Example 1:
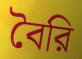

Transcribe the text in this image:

বৈরি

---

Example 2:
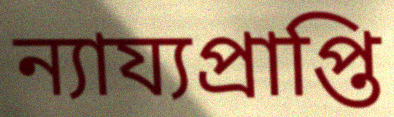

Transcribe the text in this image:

ন্যায্যপ্রাপ্তি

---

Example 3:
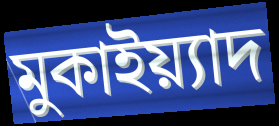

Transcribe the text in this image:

মুকাইয়্যাদ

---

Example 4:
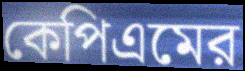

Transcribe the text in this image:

কেপিএমের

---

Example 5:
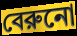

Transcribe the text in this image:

বেরুনো